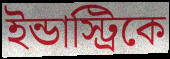
ইন্ডাস্ট্রিকে